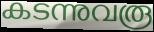
കടന്നുവരൂ